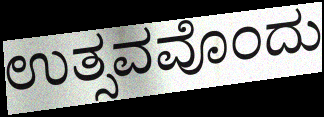
ಉತ್ಸವವೊಂದು